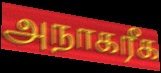
அநாகரீக